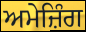
ਅਮੇਜ਼ਿੰਗ